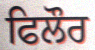
ਫਿਲੌਰ